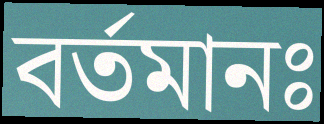
বর্তমানঃ